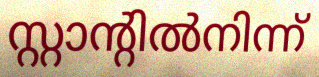
സ്റ്റാന്റിൽനിന്ന്